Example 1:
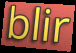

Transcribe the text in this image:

blir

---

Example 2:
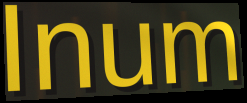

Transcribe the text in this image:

Inum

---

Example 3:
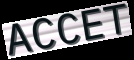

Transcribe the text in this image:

ACCET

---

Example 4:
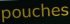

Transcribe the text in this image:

pouches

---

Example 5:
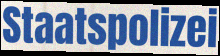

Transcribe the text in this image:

Staatspolizei